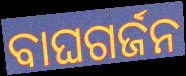
ବାଘଗର୍ଜନ